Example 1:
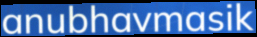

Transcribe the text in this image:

anubhavmasik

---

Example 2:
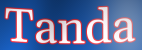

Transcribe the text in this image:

Tanda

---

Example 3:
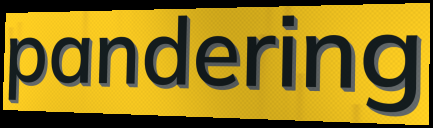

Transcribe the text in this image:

pandering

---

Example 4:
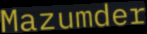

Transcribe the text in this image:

Mazumder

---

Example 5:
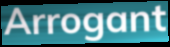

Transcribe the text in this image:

Arrogant